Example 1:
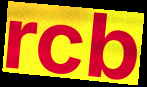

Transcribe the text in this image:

rcb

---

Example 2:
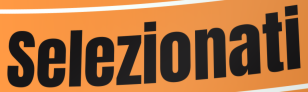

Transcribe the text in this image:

Selezionati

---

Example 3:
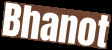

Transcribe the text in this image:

Bhanot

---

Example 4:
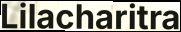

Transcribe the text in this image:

Lilacharitra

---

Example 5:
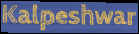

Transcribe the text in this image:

Kalpeshwar